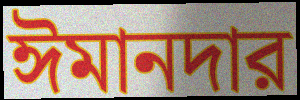
ঈমানদার